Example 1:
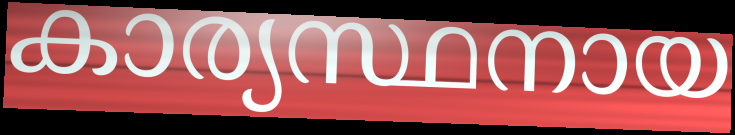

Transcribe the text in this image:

കാര്യസ്ഥനായ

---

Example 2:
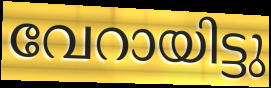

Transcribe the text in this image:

വേറായിട്ടു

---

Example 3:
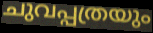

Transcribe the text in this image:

ചുവപ്പത്രയും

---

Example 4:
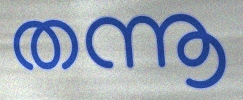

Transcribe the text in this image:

തന്നൂ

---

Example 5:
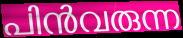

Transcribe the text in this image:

പിൻവരുന്ന